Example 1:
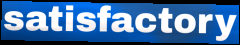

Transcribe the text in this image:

satisfactory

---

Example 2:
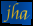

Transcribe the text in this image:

jha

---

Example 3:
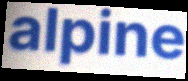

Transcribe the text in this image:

alpine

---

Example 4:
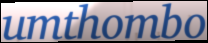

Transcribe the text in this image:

umthombo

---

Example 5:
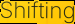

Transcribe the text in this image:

Shifting